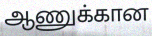
ஆணுக்கான